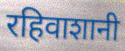
रहिवाशानी